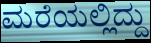
ಮರೆಯಲ್ಲಿದ್ದು